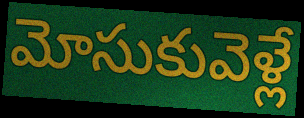
మోసుకువెళ్లే